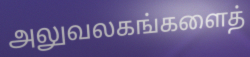
அலுவலகங்களைத்